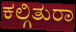
ಕಲ್ಗಿತುರಾ